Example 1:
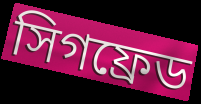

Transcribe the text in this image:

সিগফ্রেড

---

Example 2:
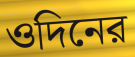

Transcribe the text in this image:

ওদিনের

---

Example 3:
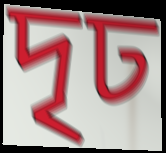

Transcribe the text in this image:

দৃঢ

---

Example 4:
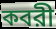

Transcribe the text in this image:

কবরী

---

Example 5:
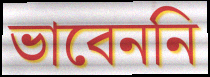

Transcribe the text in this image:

ভাবেননি